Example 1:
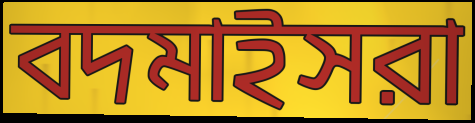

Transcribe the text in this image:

বদমাইসরা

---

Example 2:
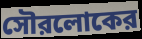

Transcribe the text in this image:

সৌরলোকের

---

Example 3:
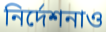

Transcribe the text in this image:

নির্দেশনাও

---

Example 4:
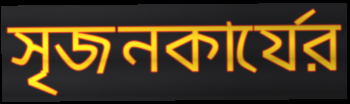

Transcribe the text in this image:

সৃজনকার্যের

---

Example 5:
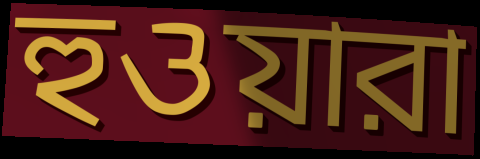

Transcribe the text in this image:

হুওয়ারা